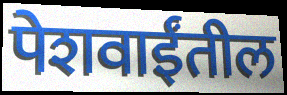
पेशवाईंतील